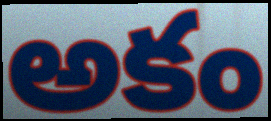
అకం